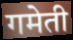
गमेती